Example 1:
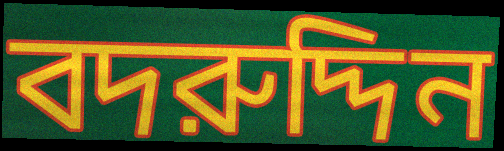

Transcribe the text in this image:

বদরুদ্দিন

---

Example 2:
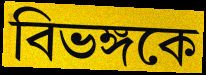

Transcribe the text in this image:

বিভঙ্গকে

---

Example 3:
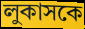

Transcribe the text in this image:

লুকাসকে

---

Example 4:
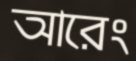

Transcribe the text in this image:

আরেং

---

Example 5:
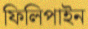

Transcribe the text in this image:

ফিলিপাইন